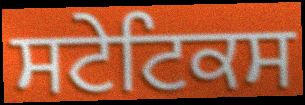
ਸਟੇਟਿਕਸ